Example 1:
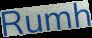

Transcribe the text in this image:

Rumh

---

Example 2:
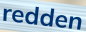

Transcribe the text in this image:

redden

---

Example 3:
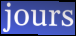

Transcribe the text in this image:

jours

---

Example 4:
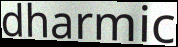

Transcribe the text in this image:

dharmic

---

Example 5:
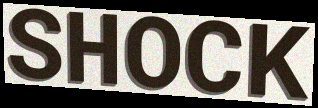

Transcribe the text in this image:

SHOCK